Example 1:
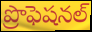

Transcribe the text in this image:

ప్రొఫెషనల్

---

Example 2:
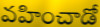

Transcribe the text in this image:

వహించాడో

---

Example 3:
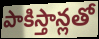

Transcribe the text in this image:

పాకిస్తాన్లతో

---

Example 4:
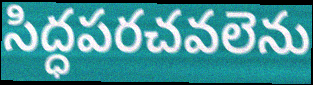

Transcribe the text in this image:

సిద్ధపరచవలెను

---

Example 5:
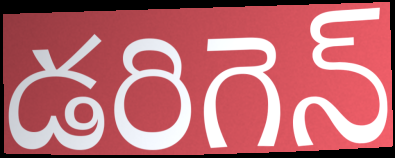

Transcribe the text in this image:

డరిగెన్